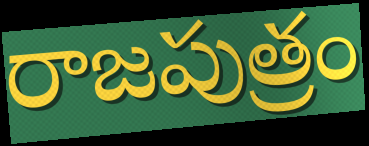
రాజపుత్రం